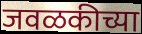
जवळकीच्या